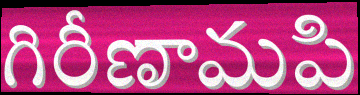
గిరీణామపి